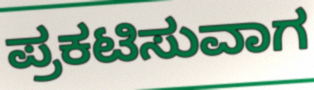
ಪ್ರಕಟಿಸುವಾಗ